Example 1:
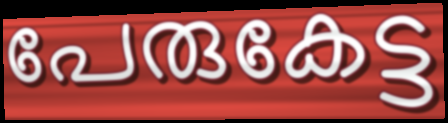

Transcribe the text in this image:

പേരുകേട്ട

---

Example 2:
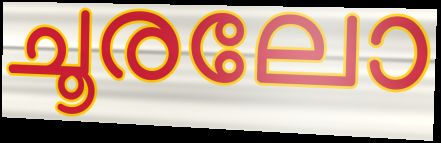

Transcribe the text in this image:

ചൂരലോ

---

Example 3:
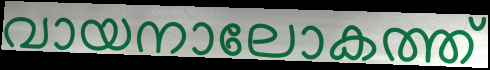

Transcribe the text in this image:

വായനാലോകത്ത്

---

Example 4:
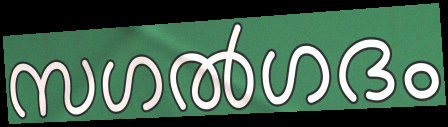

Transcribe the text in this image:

സഗൽഗദം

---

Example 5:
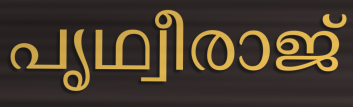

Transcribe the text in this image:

പൃഥ്വീരാജ്